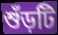
শুঁড়টি